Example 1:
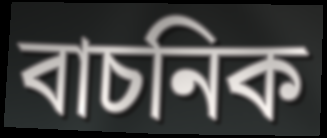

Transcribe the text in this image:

বাচনিক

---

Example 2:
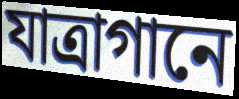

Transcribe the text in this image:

যাত্রাগানে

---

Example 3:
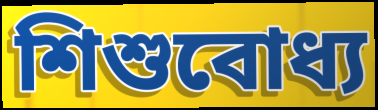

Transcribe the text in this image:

শিশুবোধ্য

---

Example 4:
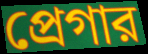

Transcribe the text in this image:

প্রেগার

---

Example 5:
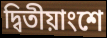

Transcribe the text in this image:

দ্বিতীয়াংশে